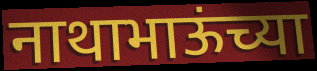
नाथाभाऊंच्या